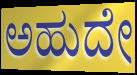
ಅಹುದೇ